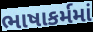
ભાષાકર્મમાં